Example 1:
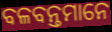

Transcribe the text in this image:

ବଳବନ୍ତମାନେ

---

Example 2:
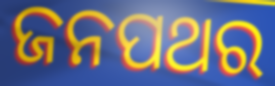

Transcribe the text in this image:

ଜନପଥର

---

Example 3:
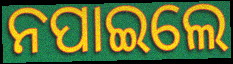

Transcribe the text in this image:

ନପାଇଲେ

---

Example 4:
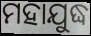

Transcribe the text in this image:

ମହାଯୁଦ୍ଧ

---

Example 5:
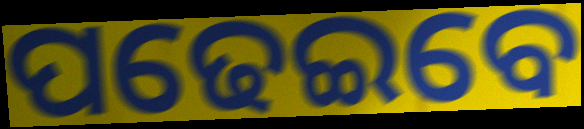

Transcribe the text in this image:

ପଢେଇବେ